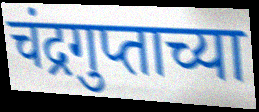
चंद्रगुप्ताच्या